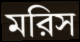
মরিস